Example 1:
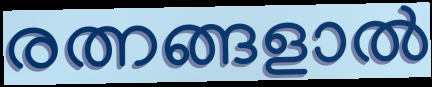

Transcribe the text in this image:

രത്നങ്ങളാൽ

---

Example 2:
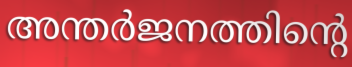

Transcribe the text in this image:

അന്തർജനത്തിന്റെ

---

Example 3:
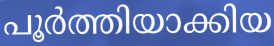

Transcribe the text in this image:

പൂർത്തിയാക്കിയ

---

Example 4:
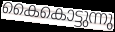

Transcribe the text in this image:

കൈകൊട്ടുന്നു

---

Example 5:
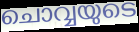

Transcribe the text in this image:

ചൊവ്വയുടെ